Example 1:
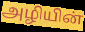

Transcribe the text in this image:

அழியின்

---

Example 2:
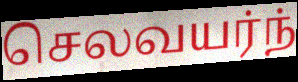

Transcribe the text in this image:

செலவயர்ந்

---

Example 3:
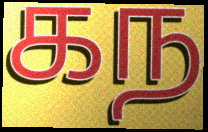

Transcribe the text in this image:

கந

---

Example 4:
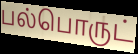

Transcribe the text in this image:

பல்பொருட்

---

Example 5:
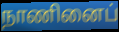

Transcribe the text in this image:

நாணினைப்